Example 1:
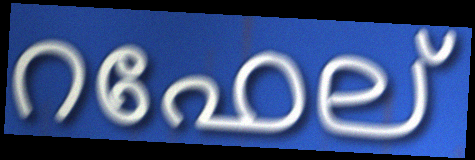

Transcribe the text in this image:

റഫേല്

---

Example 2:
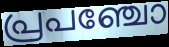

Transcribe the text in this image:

പ്രപഞ്ചോ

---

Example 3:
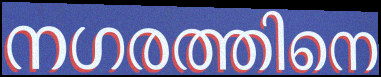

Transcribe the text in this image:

നഗരത്തിനെ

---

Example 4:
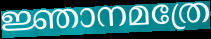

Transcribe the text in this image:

ജ്ഞാനമത്രേ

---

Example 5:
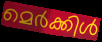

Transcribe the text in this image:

മെർക്കിൾ